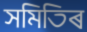
সমিতিৰ